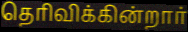
தெரிவிக்கின்றார்